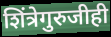
शिंत्रेगुरुजीही